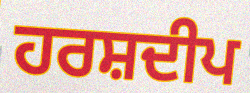
ਹਰਸ਼ਦੀਪ